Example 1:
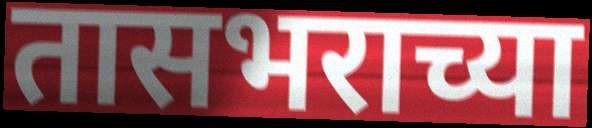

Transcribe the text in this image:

तासभराच्या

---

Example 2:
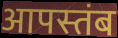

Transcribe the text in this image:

आपस्तंब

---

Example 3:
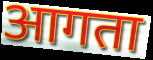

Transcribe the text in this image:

आगता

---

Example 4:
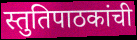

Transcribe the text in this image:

स्तुतिपाठकांची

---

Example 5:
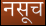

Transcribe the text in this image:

नसूच